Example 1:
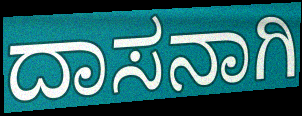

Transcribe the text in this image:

ದಾಸನಾಗಿ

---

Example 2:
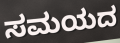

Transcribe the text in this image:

ಸಮಯದ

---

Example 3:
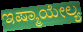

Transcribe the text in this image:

ಇಷ್ಮಾಯೇಲ್ಯ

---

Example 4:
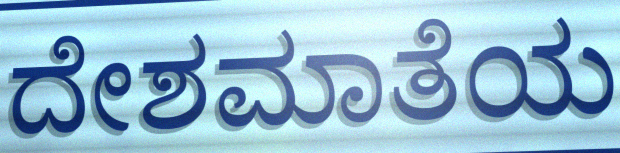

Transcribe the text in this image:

ದೇಶಮಾತೆಯ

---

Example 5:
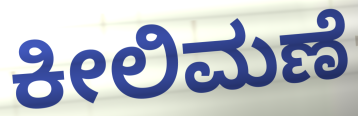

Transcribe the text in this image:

ಕೀಲಿಮಣೆ